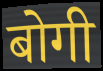
बोगी